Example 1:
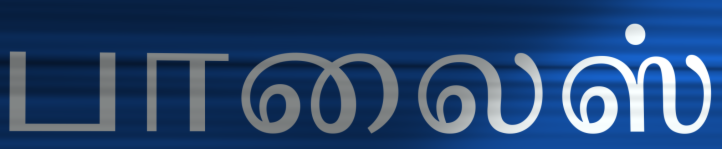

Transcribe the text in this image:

பாலைஸ்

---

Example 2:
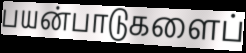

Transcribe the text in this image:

பயன்பாடுகளைப்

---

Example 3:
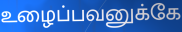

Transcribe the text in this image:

உழைப்பவனுக்கே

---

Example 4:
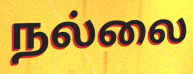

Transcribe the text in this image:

நல்லை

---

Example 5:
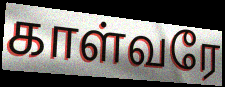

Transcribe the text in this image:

காள்வரே